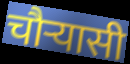
चौर्‍यासी